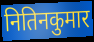
नितिनकुमार